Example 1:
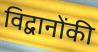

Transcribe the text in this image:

विद्वानोंकी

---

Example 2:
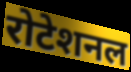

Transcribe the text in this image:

रोटेशनल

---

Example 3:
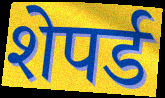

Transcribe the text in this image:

शेपर्ड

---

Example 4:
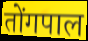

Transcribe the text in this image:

तोंगपाल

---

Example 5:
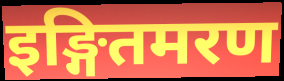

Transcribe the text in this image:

इङ्गितमरण